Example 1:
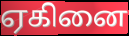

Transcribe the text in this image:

ஏகினை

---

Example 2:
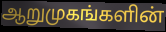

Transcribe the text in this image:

ஆறுமுகங்களின்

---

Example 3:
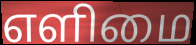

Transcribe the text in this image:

எளிமை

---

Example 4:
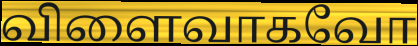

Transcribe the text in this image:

விளைவாகவோ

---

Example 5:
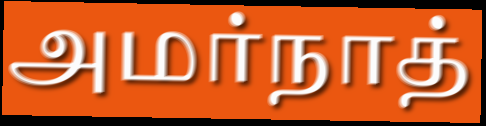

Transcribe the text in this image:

அமர்நாத்